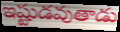
ఇష్టుడవుతాడు